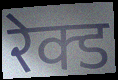
रेक्ड